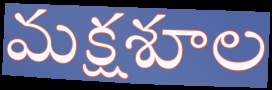
మక్షశూల